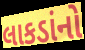
લાકડાંનો